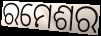
ରମେଶର